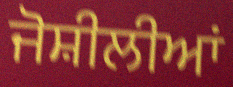
ਜੋਸ਼ੀਲੀਆਂ